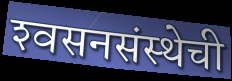
श्वसनसंस्थेची